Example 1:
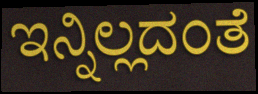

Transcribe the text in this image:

ಇನ್ನಿಲ್ಲದಂತೆ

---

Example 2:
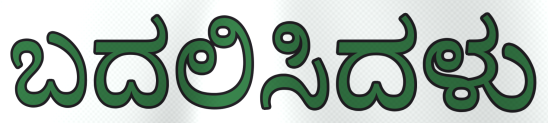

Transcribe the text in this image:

ಬದಲಿಸಿದಳು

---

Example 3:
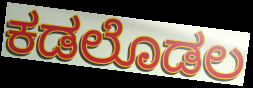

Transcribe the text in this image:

ಕಡಲೊಡಲ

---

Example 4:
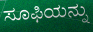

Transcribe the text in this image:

ಸೂಫಿಯನ್ನು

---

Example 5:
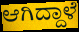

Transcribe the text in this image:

ಆಗಿದ್ದಾಳೆ